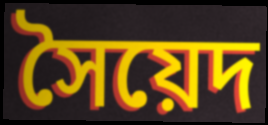
সৈয়েদ